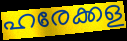
ഹരേക്കള